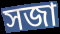
সজা